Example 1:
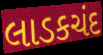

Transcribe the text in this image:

લાડકચંદ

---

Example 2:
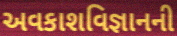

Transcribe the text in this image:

અવકાશવિજ્ઞાનની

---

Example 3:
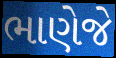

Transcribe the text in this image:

ભાણેજે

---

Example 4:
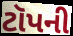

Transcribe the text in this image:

ટૉપની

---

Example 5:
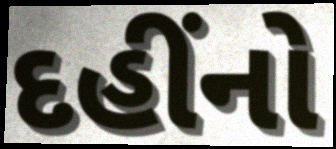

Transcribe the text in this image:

દહીંનો